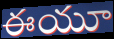
ఈయూ